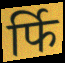
र्फि